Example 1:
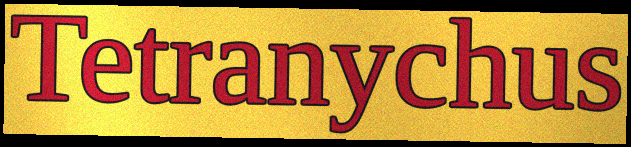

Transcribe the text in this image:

Tetranychus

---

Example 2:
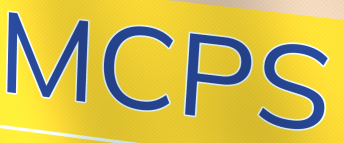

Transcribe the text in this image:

MCPS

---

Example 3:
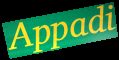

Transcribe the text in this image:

Appadi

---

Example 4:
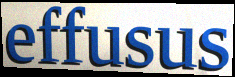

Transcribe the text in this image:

effusus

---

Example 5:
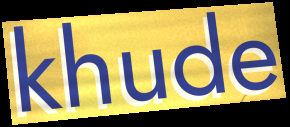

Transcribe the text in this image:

khude